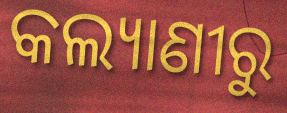
କଲ୍ୟାଣୀରୁ